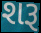
શરૂ